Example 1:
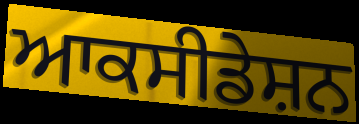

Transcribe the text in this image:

ਆਕਸੀਡੇਸ਼ਨ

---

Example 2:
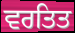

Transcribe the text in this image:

ਵਰਤਿਤ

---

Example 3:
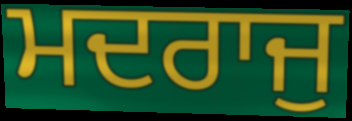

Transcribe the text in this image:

ਮਦਰਾਜੁ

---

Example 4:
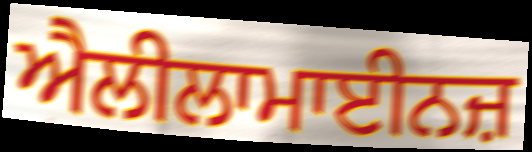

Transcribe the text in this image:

ਐਲੀਲਾਮਾਈਨਜ਼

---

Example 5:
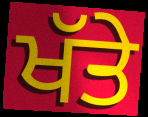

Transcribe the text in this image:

ਖੱਤੇ